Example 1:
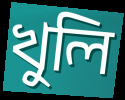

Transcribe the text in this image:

খুলি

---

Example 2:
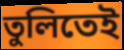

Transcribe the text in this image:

তুলিতেই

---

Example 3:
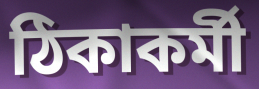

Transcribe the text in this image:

ঠিকাকর্মী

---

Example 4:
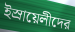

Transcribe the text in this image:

ইস্রায়েলীদের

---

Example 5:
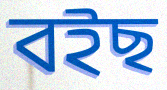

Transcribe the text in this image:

বইছ